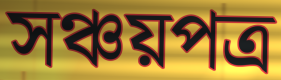
সঞ্চয়পত্র